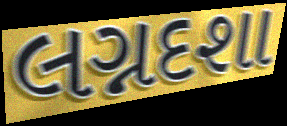
લગ્નદશા